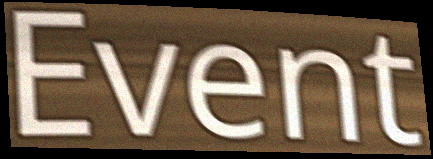
Event